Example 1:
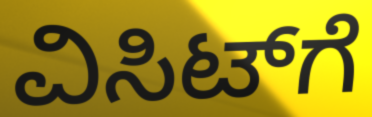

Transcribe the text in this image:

ವಿಸಿಟ್‌ಗೆ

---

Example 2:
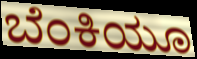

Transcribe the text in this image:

ಬೆಂಕಿಯೂ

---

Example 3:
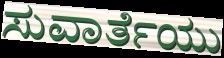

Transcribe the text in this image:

ಸುವಾರ್ತೆಯು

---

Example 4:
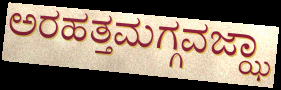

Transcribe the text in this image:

ಅರಹತ್ತಮಗ್ಗವಜ್ಝಾ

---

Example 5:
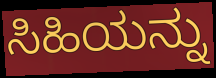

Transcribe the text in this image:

ಸಿಹಿಯನ್ನು